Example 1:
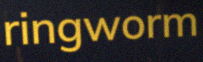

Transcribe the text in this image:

ringworm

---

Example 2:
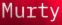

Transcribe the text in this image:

Murty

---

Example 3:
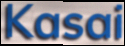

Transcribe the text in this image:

Kasai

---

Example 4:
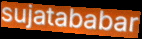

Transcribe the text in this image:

sujatababar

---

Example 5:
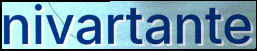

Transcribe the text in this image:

nivartante